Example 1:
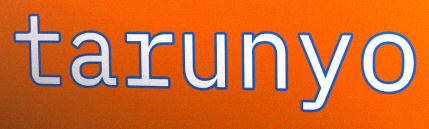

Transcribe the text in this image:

tarunyo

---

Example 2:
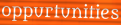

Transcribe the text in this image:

oppurtunities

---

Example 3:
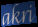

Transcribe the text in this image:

akri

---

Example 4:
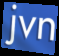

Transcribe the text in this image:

jvn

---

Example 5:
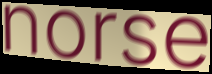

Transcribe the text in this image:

norse